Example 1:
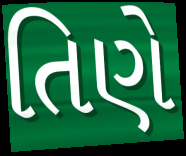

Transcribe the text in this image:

તિણે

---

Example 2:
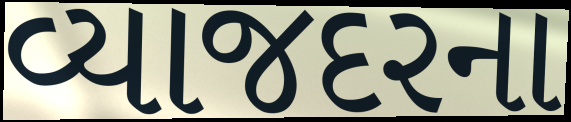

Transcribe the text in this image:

વ્યાજદરના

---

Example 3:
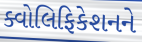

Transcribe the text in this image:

ક્વોલિફિકેશનને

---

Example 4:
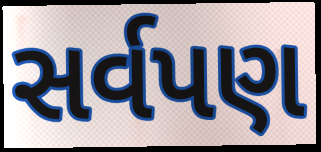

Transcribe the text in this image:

સર્વપણ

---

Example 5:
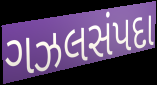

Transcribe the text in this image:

ગઝલસંપદા